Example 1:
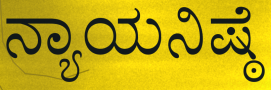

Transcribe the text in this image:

ನ್ಯಾಯನಿಷ್ಠೆ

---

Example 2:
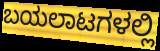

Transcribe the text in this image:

ಬಯಲಾಟಗಳಲ್ಲಿ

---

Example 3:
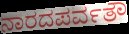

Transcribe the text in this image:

ನಾರದಪರ್ವತೌ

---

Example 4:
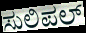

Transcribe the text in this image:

ಸುಲಿಪಲ್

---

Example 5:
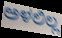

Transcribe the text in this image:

ಅಳಲಿಲ್ಲ